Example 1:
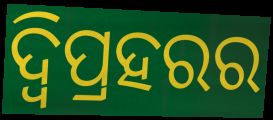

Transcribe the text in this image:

ଦ୍ବିପ୍ରହରର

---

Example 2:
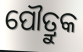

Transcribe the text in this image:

ପୌତ୍ରୁକ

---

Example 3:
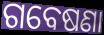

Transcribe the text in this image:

ଗବେଷଣା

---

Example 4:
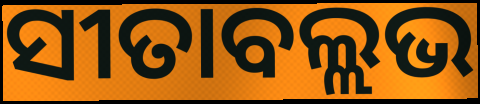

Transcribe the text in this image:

ସୀତାବଲ୍ଲଭ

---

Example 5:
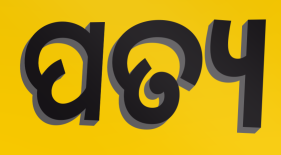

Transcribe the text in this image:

ପତ୍ୟ